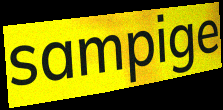
sampige